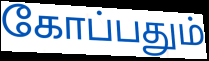
கோப்பதும்